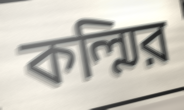
কল্মির